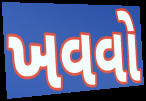
ખવવો